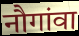
नौगांवा